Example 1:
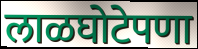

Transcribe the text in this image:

लाळघोटेपणा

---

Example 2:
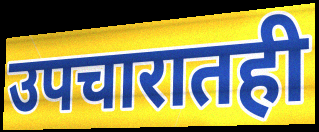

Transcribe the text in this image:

उपचारातही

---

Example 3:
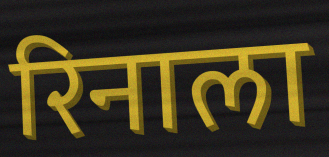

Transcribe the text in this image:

रिनाला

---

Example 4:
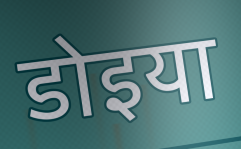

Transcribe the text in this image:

डोइया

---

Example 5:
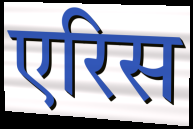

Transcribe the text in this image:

एरिस